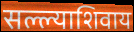
सल्ल्याशिवाय